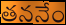
తననేం